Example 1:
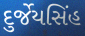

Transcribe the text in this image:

દુર્જેયસિંહ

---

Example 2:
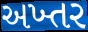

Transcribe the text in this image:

અખ્તર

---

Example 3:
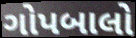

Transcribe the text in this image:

ગોપબાલો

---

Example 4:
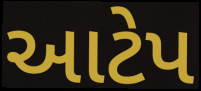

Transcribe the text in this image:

આટેપ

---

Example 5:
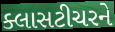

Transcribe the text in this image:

ક્લાસટીચરને